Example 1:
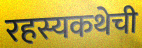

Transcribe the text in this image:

रहस्यकथेची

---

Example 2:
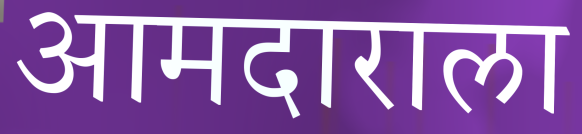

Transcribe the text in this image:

आमदाराला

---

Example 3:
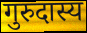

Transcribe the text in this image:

गुरुदास्य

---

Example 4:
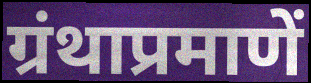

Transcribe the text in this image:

ग्रंथाप्रमाणें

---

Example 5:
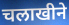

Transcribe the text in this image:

चलाखीने